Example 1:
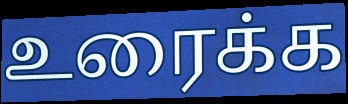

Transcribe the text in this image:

உரைக்க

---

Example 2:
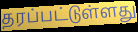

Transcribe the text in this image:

தரப்பட்டுள்ளது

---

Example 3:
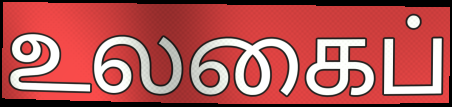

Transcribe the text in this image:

உலகைப்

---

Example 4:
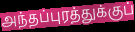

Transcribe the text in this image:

அந்தப்புரத்துக்குப்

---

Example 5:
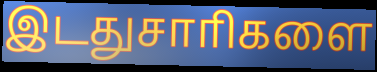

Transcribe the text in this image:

இடதுசாரிகளை